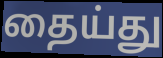
தைய்து